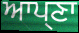
ਆਪ੍ਣਾ